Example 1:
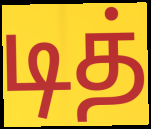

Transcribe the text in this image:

டித்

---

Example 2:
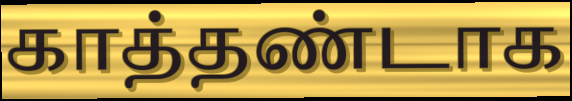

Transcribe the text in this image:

காத்தண்டாக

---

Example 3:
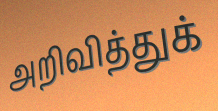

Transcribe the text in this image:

அறிவித்துக்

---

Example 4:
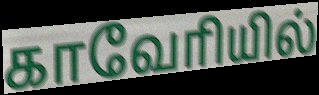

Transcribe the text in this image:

காவேரியில்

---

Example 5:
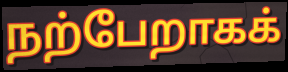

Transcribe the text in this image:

நற்பேறாகக்